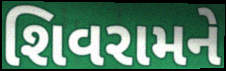
શિવરામને